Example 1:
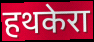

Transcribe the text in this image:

हथकेरा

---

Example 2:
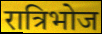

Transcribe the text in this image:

रात्रिभोज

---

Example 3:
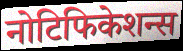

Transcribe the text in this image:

नोटिफिकेशन्स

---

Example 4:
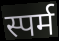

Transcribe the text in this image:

स्पर्म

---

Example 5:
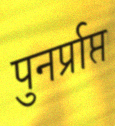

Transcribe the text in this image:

पुनर्प्राप्त